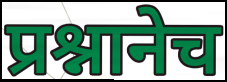
प्रश्नानेच